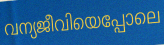
വന്യജീവിയെപ്പോലെ